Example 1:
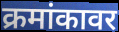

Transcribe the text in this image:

क्रमांकावर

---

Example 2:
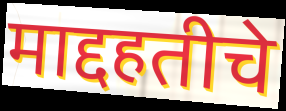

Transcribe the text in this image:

माद्दहतीचे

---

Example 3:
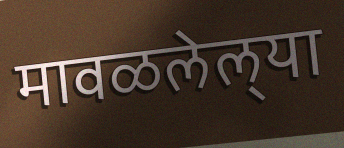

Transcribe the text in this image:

मावळलेल्या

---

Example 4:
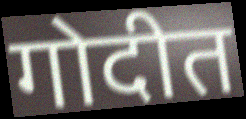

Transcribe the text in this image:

गोदीत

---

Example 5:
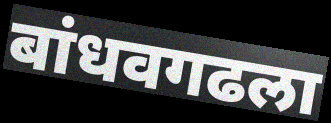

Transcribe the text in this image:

बांधवगढला